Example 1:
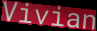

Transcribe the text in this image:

Vivian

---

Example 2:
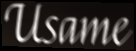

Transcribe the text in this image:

Usame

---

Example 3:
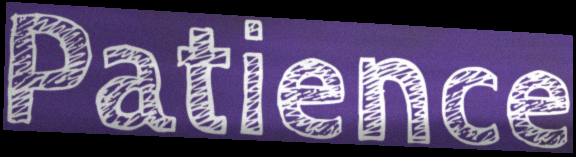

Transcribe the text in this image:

Patience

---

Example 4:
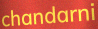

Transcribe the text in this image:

chandarni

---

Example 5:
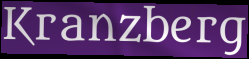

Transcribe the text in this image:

Kranzberg